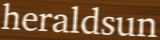
heraldsun